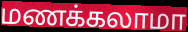
மணக்கலாமா